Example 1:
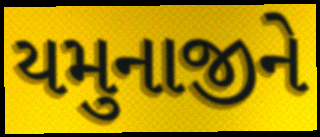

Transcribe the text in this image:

યમુનાજીને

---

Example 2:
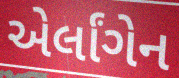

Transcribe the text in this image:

એર્લાંગેન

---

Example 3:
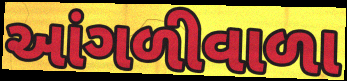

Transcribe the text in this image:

આંગળીવાળા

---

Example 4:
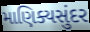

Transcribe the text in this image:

માણિક્યસુંદર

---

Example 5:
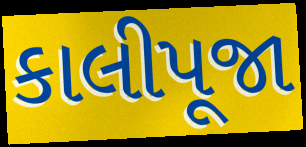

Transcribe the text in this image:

કાલીપૂજા